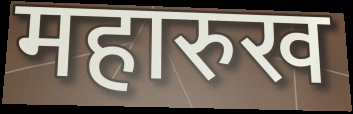
महारुख